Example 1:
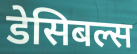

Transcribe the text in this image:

डेसिबल्स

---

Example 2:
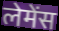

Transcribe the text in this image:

लेमेंस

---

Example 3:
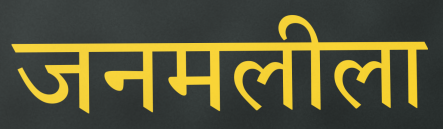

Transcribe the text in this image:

जनमलीला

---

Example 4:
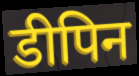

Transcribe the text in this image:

डीपिन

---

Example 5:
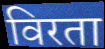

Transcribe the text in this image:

विरता